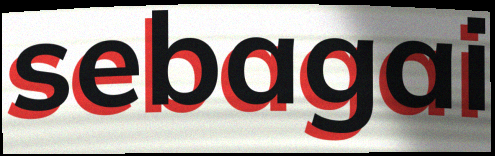
sebagai